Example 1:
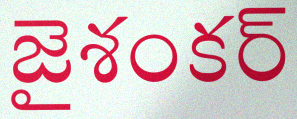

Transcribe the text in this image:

జైశంకర్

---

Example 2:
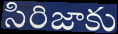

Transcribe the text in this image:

సిరిజాకు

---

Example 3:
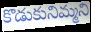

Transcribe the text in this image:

కొడుకునిమ్మని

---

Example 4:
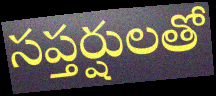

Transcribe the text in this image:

సప్తర్షులతో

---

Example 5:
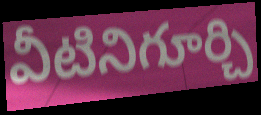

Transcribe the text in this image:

వీటినిగూర్చి